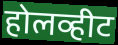
होलव्हीट